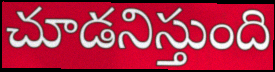
చూడనిస్తుంది